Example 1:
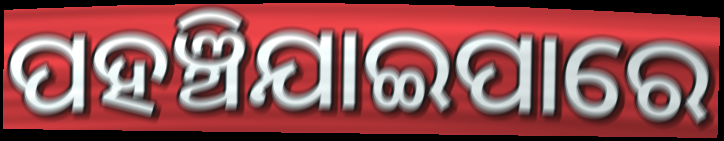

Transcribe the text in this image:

ପହଞ୍ଚିଯାଇପାରେ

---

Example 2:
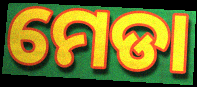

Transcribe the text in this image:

ମେଡା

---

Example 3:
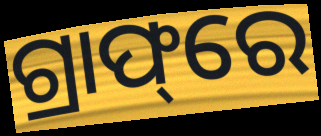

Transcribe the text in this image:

ଗ୍ରାଫ୍‌ରେ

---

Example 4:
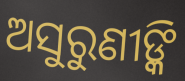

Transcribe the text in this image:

ଅସୁରୁଣୀଙ୍କି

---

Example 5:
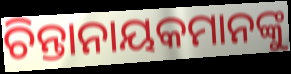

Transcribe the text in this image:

ଚିନ୍ତାନାୟକମାନଙ୍କୁ